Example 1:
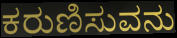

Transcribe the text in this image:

ಕರುಣಿಸುವನು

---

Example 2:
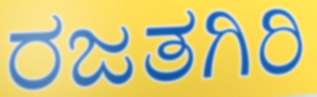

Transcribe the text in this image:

ರಜತಗಿರಿ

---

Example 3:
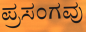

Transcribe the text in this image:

ಪ್ರಸಂಗವು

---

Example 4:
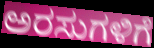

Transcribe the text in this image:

ಅರಸುಗಳಿಗೆ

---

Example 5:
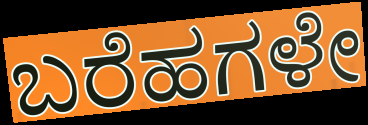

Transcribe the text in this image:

ಬರೆಹಗಳೇ